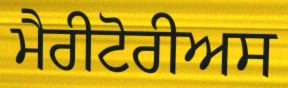
ਮੈਰੀਟੋਰੀਅਸ